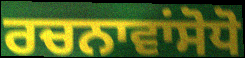
ਰਚਨਾਵਾਂਸੋਧੋ